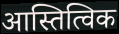
आस्तित्विक